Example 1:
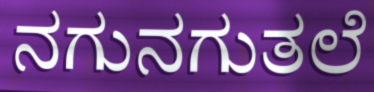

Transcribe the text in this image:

ನಗುನಗುತಲೆ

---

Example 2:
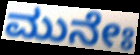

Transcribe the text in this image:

ಮುನೇಃ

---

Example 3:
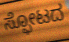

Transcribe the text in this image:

ಸ್ಫೋಟದ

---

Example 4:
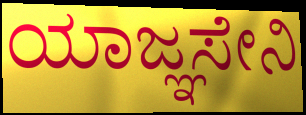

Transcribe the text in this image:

ಯಾಜ್ಞಸೇನಿ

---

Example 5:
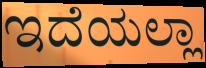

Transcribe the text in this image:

ಇದೆಯಲ್ಲಾ